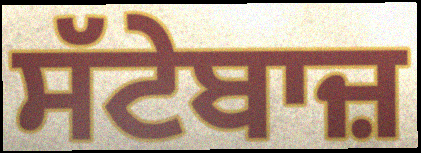
ਸੱਟੇਬਾਜ਼